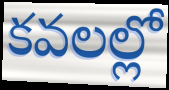
కవలల్లో